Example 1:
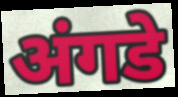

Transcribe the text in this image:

अंगडे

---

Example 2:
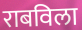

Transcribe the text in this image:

राबविला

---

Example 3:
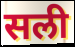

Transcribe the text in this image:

सली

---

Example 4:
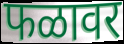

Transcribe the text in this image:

फळावर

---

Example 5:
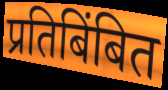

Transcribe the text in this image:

प्रतिबिंबित